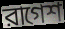
রাগেশ